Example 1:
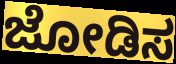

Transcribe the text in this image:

ಜೋಡಿಸ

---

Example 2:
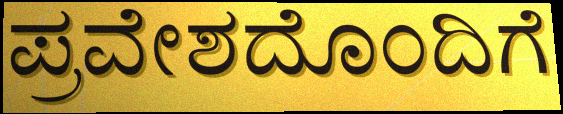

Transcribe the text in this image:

ಪ್ರವೇಶದೊಂದಿಗೆ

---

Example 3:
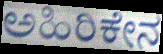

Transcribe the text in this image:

ಅಹಿರಿಕೇನ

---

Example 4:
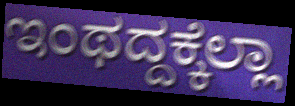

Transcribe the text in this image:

ಇಂಥದ್ದಕ್ಕೆಲ್ಲಾ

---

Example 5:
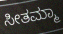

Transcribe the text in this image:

ಸೀತಮ್ಮಾ